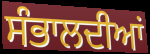
ਸੰਭਾਲਦੀਆਂ